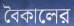
বৈকালের